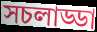
সচলাড্ডা